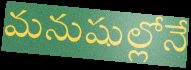
మనుషుల్లోనే